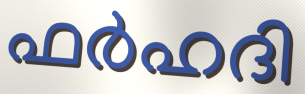
ഫർഹദി